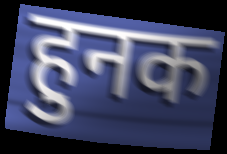
हुनक